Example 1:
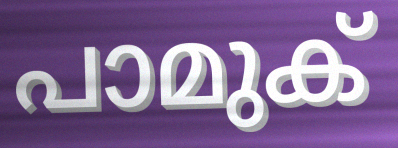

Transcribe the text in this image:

പാമുക്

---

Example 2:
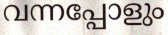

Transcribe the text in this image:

വന്നപ്പോളും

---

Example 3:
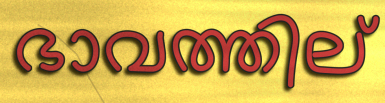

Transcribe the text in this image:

ഭാവത്തില്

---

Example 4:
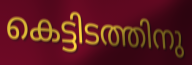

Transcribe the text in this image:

കെട്ടിടത്തിനു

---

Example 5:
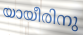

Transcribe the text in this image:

യായീരിനു